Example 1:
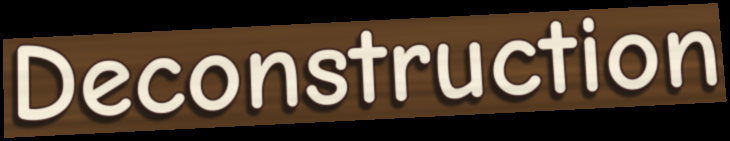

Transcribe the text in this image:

Deconstruction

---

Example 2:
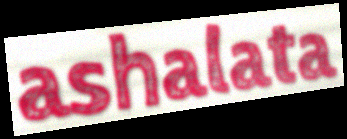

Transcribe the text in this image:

ashalata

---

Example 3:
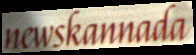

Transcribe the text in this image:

newskannada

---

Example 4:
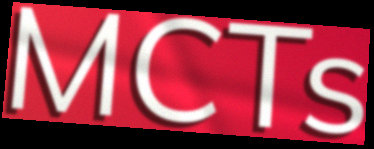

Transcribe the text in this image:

MCTs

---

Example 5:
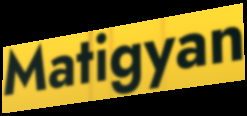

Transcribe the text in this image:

Matigyan